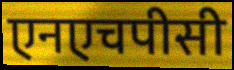
एनएचपीसी